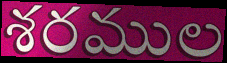
శరముల